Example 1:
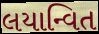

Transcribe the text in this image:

લયાન્વિત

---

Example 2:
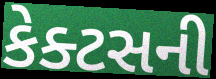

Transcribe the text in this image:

કેક્ટસની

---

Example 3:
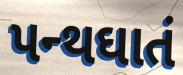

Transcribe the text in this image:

પન્થઘાતં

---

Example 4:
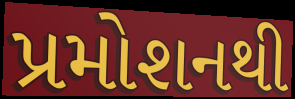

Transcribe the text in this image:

પ્રમોશનથી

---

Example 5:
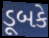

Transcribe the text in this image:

ડૂબકે